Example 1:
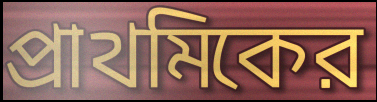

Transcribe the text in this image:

প্রাথমিকের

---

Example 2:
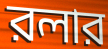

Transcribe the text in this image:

রলার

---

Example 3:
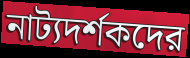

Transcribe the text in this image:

নাট্যদর্শকদের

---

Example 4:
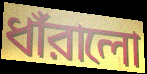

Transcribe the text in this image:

ধাঁরালো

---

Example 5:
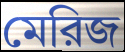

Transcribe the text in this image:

মেরিজ